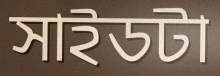
সাইডটা